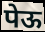
पेऊ